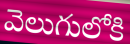
వెలుగులోకి